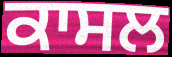
ਕਾਸਲ